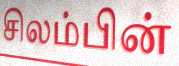
சிலம்பின்